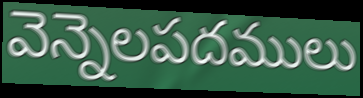
వెన్నెలపదములు